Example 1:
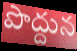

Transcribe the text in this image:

పొద్దున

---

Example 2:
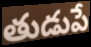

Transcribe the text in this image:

తుడుపే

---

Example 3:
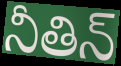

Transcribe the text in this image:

నీతిన్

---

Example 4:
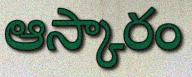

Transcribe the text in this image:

ఆస్కారం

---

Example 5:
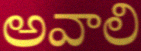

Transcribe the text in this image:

అవాలి